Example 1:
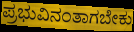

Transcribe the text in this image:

ಪ್ರಭುವಿನಂತಾಗಬೇಕು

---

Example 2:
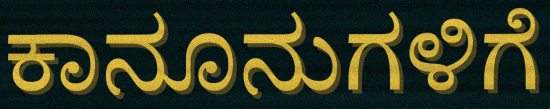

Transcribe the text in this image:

ಕಾನೂನುಗಳಿಗೆ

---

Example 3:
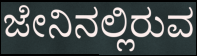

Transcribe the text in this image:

ಜೇನಿನಲ್ಲಿರುವ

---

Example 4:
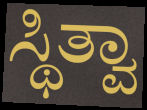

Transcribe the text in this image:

ಸ್ಥಿತ್ವಾ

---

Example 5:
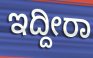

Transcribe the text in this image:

ಇದ್ದೀರಾ